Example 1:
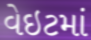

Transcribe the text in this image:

વેઇટમાં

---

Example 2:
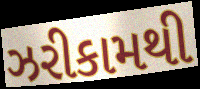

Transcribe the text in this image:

ઝરીકામથી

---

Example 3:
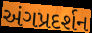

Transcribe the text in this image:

અંગપ્રદર્શન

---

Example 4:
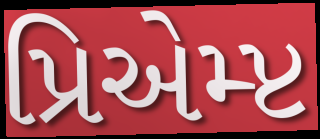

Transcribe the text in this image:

પ્રિએમ્પ્ટ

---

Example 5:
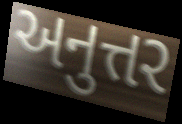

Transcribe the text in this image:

અનુત્તર